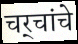
चर्चांचे